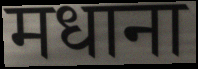
मधाना